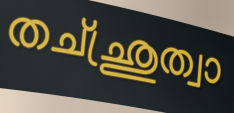
തച്ഛ്രുത്വാ